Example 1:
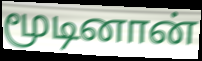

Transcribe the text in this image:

மூடினான்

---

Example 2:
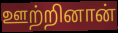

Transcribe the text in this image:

ஊற்றினான்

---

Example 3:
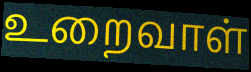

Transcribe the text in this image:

உறைவாள்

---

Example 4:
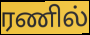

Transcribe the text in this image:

ரணில்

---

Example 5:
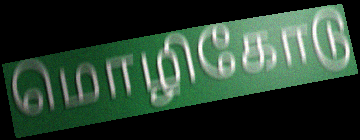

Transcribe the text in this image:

மொழிகோடு